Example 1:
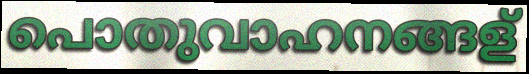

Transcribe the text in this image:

പൊതുവാഹനങ്ങള്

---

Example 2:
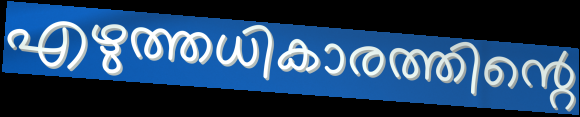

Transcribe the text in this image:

എഴുത്തധികാരത്തിന്റെ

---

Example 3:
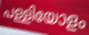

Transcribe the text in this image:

പള്ളിയോളം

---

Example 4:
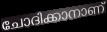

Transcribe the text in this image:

ചോദിക്കാനാണ്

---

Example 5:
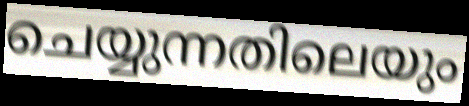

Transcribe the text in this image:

ചെയ്യുന്നതിലെയും